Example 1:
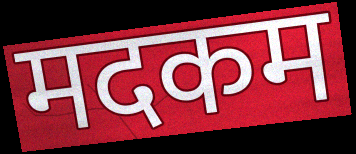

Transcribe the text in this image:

मदकम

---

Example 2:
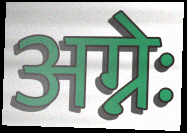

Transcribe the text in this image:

अग्नेः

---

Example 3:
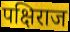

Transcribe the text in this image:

पक्षिराज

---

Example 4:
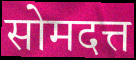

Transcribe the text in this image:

सोमदत्त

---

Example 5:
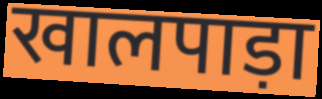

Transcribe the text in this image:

खालपाड़ा